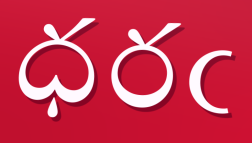
ధరఁ